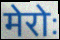
मेरोः